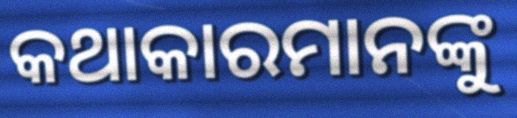
କଥାକାରମାନଙ୍କୁ